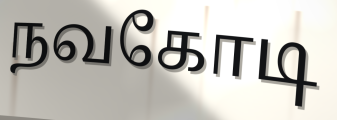
நவகோடி